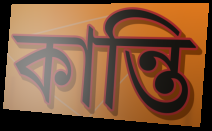
কান্তি